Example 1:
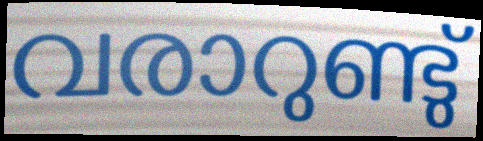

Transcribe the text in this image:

വരാറുണ്ടു്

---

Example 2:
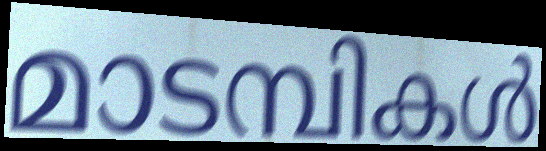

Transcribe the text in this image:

മാടമ്പികൾ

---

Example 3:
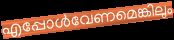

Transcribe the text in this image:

എപ്പോൾവേണമെങ്കിലും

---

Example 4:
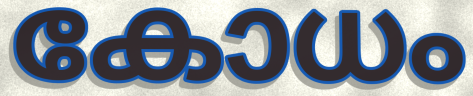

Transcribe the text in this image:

കോധം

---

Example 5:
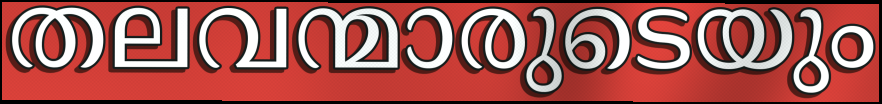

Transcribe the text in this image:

തലവന്മാരുടെയും